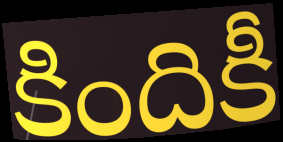
కిందికీ